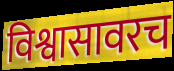
विश्वासावरच